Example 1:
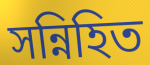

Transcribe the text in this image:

সন্নিহিত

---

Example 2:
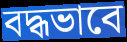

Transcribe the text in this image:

বদ্ধভাবে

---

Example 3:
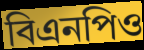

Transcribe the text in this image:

বিএনপিও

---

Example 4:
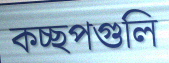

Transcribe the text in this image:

কচ্ছপগুলি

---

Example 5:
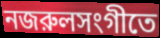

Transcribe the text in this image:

নজরুলসংগীতে